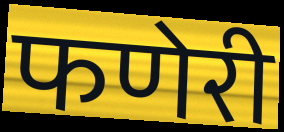
फणेरी